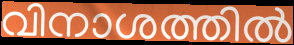
വിനാശത്തിൽ